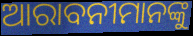
ଆରାବନୀମାନଙ୍କୁ